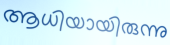
ആധിയായിരുന്നു